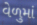
વેળુમાં